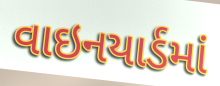
વાઇનયાર્ડમાં